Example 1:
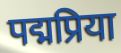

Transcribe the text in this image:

पद्मप्रिया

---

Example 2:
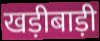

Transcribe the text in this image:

खड़ीबाड़ी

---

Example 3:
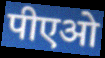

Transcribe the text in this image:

पीएओ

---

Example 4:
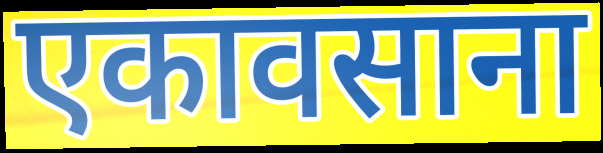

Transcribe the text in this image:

एकावसाना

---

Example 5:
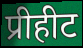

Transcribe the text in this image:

प्रीहीट